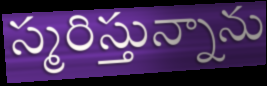
స్మరిస్తున్నాను